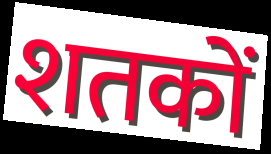
शतकों